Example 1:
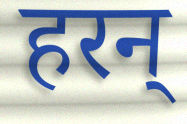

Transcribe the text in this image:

हरन्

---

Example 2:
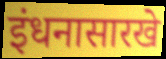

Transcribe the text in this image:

इंधनासारखे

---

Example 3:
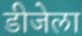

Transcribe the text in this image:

डीजेला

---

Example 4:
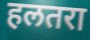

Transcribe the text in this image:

हलतरा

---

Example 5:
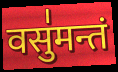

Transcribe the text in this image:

वसु॑मन्तं